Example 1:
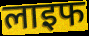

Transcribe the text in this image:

लाइफ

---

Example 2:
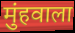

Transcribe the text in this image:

मुंहवाला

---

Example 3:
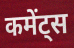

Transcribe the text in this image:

कमेंट्स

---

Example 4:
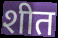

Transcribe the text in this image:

शीत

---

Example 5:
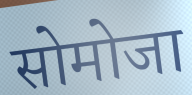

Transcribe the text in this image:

सोमोजा